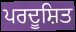
ਪਰਦੂਸ਼ਿਤ